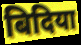
बिदिया